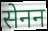
सेनन